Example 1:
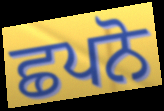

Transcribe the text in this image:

ਛਪਨੋ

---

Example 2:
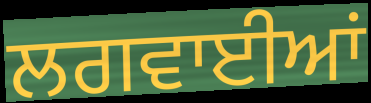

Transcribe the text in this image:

ਲਗਵਾਈਆਂ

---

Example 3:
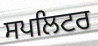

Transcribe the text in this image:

ਸਪਲਿਟਰ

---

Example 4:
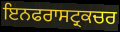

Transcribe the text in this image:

ਇਨਫਰਾਸਟ੍ਰਕਚਰ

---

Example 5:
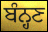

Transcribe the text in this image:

ਬੰਨ੍ਹਣ